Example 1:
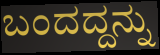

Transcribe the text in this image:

ಬಂದದ್ದನ್ನು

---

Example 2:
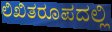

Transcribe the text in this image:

ಲಿಖಿತರೂಪದಲ್ಲಿ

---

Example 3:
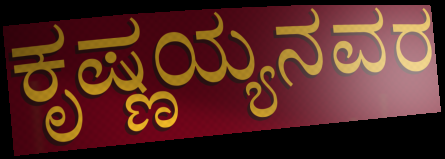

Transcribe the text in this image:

ಕೃಷ್ಣಯ್ಯನವರ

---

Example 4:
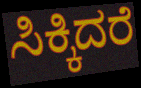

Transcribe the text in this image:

ಸಿಕ್ಕಿದರೆ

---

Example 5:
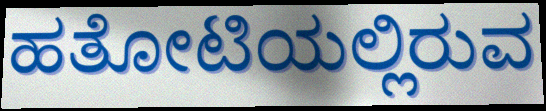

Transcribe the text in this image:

ಹತೋಟಿಯಲ್ಲಿರುವ